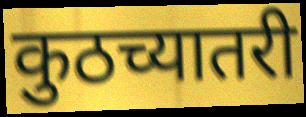
कुठच्यातरी